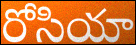
రోసియా